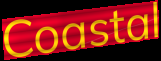
Coastal